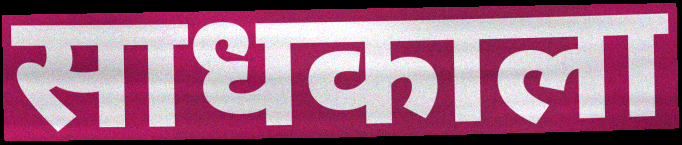
साधकाला